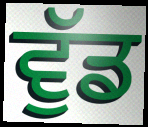
ਵੁੱਡ